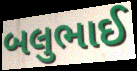
બલુભાઈ